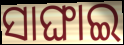
ସାଙ୍ଘାଇ